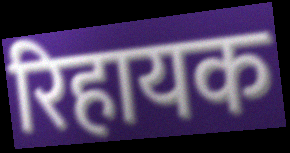
रिहायक